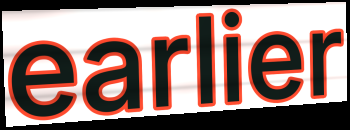
earlier